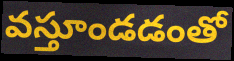
వస్తూండడంతో